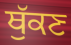
ਥੁੱਕਣ